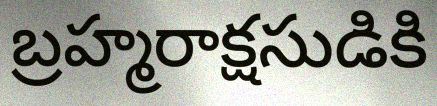
బ్రహ్మరాక్షసుడికి